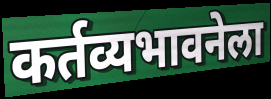
कर्तव्यभावनेला